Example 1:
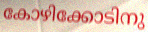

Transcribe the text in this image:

കോഴിക്കോടിനു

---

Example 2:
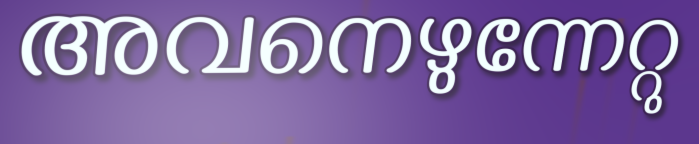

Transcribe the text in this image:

അവനെഴുന്നേറ്റു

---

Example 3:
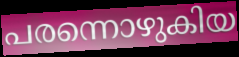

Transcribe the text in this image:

പരന്നൊഴുകിയ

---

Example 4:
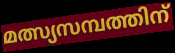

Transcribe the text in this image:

മത്സ്യസമ്പത്തിന്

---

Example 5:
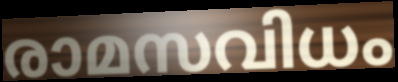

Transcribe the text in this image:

രാമസവിധം